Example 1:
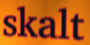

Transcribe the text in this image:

skalt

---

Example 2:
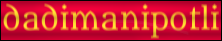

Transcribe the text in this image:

dadimanipotli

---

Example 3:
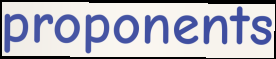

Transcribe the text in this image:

proponents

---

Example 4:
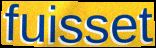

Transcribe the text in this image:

fuisset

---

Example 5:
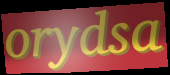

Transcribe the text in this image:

orydsa